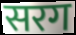
सरग